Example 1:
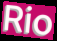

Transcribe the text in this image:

Rio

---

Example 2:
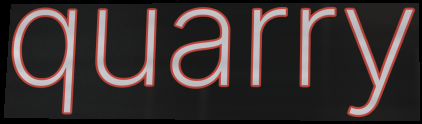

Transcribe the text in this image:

quarry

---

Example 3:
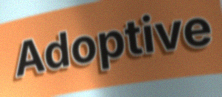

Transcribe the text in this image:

Adoptive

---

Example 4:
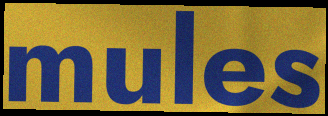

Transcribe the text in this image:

mules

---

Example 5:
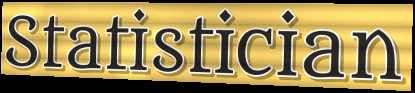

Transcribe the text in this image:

Statistician